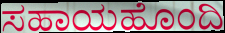
ಸಹಾಯಹೊಂದಿ